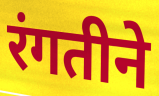
रंगतीने